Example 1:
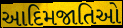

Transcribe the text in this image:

આદિમજાતિઓ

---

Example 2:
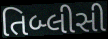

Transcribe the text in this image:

તિબ્લીસી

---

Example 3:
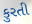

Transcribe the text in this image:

કુરતી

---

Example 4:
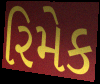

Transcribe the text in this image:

રિમેક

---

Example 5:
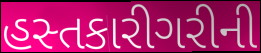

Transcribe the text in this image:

હસ્તકારીગરીની